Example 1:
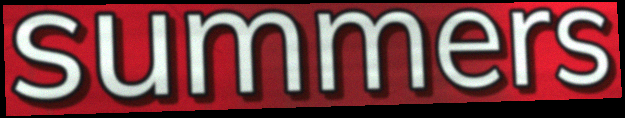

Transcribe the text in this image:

summers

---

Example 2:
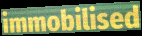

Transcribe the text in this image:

immobilised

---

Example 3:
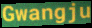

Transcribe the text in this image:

Gwangju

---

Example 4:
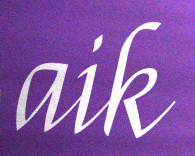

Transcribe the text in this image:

aik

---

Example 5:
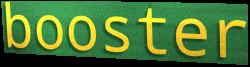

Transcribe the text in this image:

booster